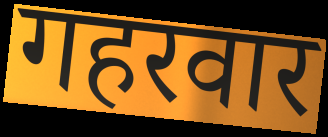
गहरवार